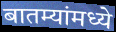
बातम्यांमध्ये